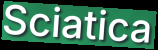
Sciatica